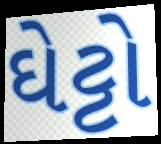
ઘેટ્ટો